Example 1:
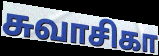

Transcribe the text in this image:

சுவாசிகா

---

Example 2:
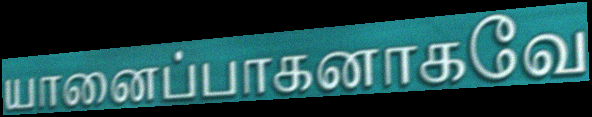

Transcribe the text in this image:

யானைப்பாகனாகவே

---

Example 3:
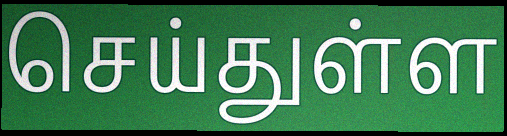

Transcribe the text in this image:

செய்துள்ள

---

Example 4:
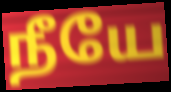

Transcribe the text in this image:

நீயே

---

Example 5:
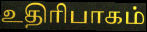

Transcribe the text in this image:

உதிரிபாகம்